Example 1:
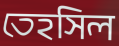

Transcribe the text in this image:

তেহসিল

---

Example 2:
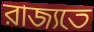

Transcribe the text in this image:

রাজ্যতে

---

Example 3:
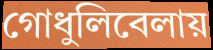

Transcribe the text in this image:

গোধুলিবেলায়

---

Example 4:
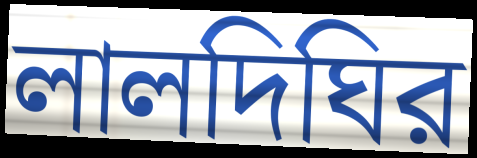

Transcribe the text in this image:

লালদিঘির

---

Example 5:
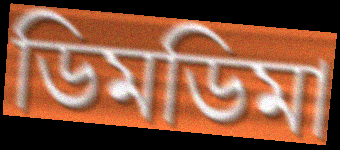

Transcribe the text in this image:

ডিমডিমা